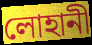
লোহানী